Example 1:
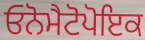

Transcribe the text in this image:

ਓਨੋਮੈਟੋਪੋਇਕ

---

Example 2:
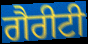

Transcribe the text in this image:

ਗੈਰੀਟੀ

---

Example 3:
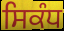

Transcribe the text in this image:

ਸਿਕੰਧ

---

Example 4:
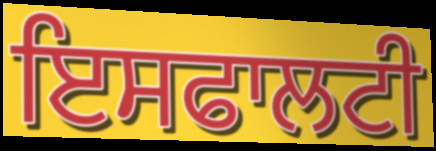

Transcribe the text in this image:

ਇਸਫਾਲਟੀ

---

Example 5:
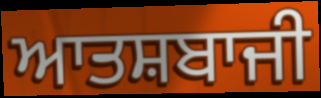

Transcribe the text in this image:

ਆਤਸ਼ਬਾਜੀ